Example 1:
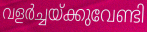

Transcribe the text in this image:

വളർച്ചയ്ക്കുവേണ്ടി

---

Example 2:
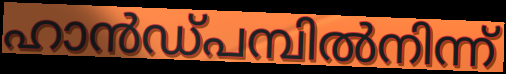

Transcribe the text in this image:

ഹാൻഡ്പമ്പിൽനിന്ന്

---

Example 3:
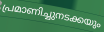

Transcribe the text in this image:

പ്രമാണിച്ചുനടക്കയും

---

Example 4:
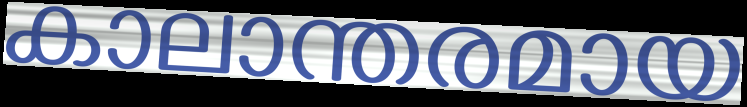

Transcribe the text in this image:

കാലാന്തരമായ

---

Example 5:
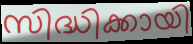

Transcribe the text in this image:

സിദ്ധിക്കായി